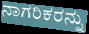
ನಾಗರಿಕರನ್ನು